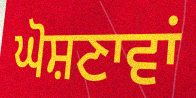
ਘੋਸ਼ਣਾਵਾਂ